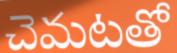
చెమటతో